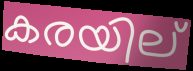
കരയില്